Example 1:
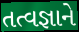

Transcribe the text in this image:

તત્વજ્ઞાને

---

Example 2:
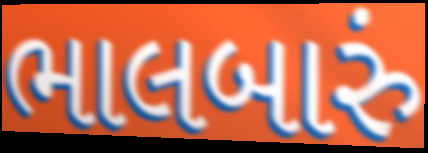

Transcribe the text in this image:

ભાલબારું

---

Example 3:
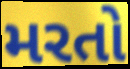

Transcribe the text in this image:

મરતો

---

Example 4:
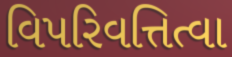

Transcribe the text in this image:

વિપરિવત્તિત્વા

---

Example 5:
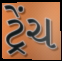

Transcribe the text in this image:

ટ્રેંચ